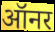
ऑनर